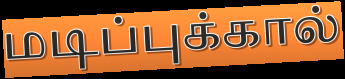
மடிப்புக்கால்